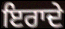
ਇਰਾਦੇ